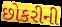
છોકરીની